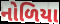
નોળિયા